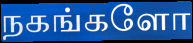
நகங்களோ